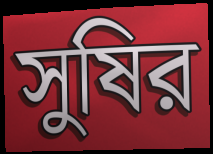
সুষির